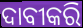
ଦାବୀକରି